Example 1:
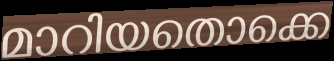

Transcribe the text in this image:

മാറിയതൊക്കെ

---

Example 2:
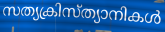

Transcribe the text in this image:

സത്യക്രിസ്ത്യാനികൾ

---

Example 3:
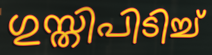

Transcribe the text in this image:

ഗുസ്തിപിടിച്ച്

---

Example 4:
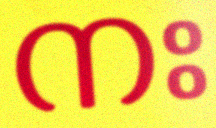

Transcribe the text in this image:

നഃ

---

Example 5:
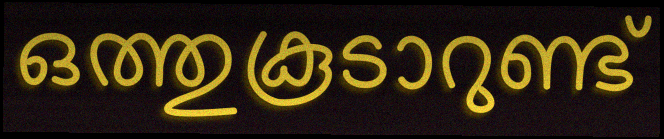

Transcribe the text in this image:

ഒത്തുകൂടാറുണ്ട്